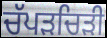
ਚੱਪੜਚਿੜੀ